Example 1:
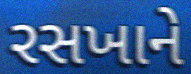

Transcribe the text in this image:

રસખાને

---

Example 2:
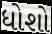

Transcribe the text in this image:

ધોશો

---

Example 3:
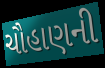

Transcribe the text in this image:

ચૌહાણની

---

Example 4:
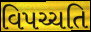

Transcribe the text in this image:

વિપચ્ચતિ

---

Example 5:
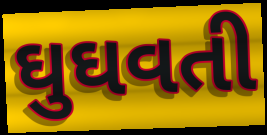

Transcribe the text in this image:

ઘુઘવતી